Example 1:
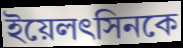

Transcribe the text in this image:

ইয়েলৎসিনকে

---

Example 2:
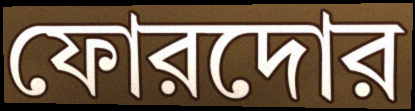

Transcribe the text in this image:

ফোরদোর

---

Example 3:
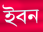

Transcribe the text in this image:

ইবন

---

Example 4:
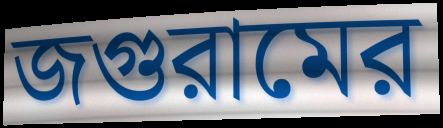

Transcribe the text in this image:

জগুরামের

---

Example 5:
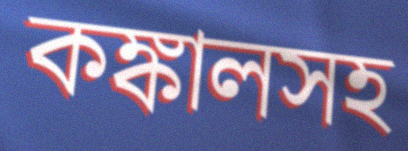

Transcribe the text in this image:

কঙ্কালসহ